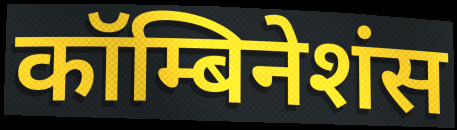
कॉम्बिनेशंस